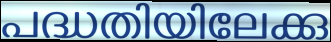
പദ്ധതിയിലേക്കു